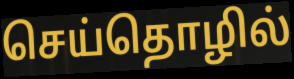
செய்தொழில்